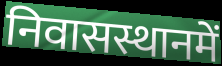
निवासस्थानमें